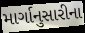
માર્ગાનુસારીના